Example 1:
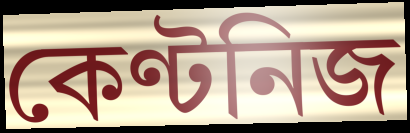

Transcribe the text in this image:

কেণ্টনিজ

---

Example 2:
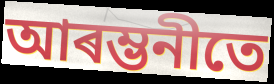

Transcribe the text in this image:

আৰম্ভনীতে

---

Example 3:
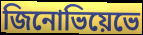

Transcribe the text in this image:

জিনোভিয়েভে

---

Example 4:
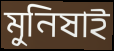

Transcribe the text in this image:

মুনিষাই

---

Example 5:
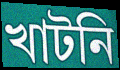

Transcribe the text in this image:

খাটনি